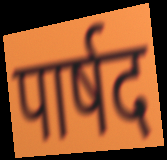
पार्षद